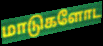
மாடுகளோட